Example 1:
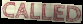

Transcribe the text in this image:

CALLED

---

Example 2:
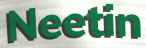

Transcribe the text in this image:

Neetin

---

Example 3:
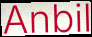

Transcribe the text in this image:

Anbil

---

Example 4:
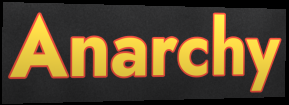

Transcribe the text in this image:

Anarchy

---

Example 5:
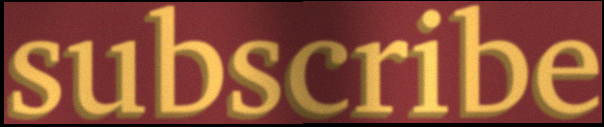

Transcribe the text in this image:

subscribe